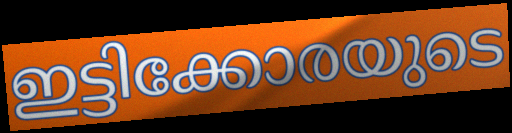
ഇട്ടിക്കോരയുടെ